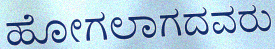
ಹೋಗಲಾಗದವರು